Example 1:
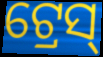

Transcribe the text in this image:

ଟ୍ରେସ୍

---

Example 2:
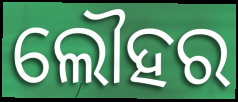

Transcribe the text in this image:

ଲୌହର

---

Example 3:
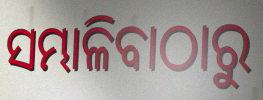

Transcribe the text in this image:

ସମ୍ଭାଳିବାଠାରୁ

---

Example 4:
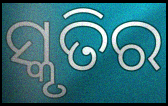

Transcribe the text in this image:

ସ୍କୃତିର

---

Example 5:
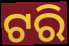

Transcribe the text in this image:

ଟରି